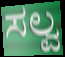
ಸಲ್ವ